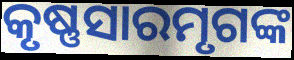
କୃଷ୍ଣସାରମୃଗଙ୍କ